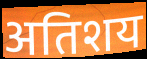
अतिशय